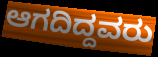
ಆಗದಿದ್ದವರು